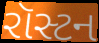
રૉસ્ટન